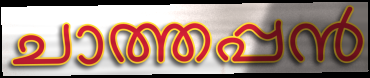
ചാത്തപ്പൻ